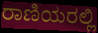
ರಾಣಿಯರಲ್ಲಿ